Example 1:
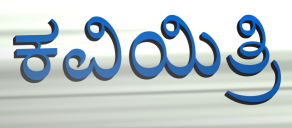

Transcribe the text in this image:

ಕವಿಯಿತ್ರಿ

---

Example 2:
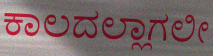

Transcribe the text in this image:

ಕಾಲದಲ್ಲಾಗಲೀ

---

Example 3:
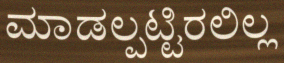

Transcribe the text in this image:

ಮಾಡಲ್ಪಟ್ಟಿರಲಿಲ್ಲ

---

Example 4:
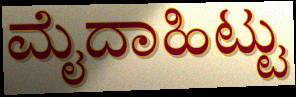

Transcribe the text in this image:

ಮೈದಾಹಿಟ್ಟು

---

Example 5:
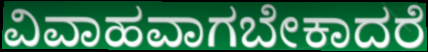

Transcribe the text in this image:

ವಿವಾಹವಾಗಬೇಕಾದರೆ